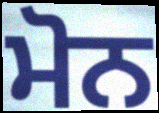
ਮੋਨ